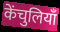
केंचुलियाँ